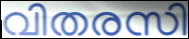
വിതരസി